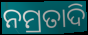
ନମ୍ରତାଦି